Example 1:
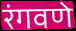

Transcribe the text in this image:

रंगवणे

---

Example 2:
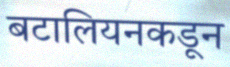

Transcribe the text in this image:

बटालियनकडून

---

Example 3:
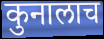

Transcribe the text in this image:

कुनालाच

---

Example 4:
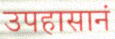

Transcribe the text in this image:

उपहासानं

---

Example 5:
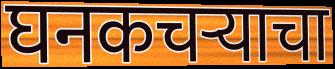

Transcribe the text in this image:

घनकचऱ्याचा